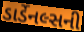
ડાર્ડેનલ્સની